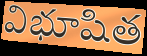
విభూషిత